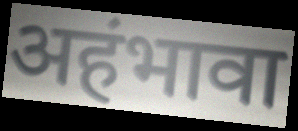
अहंभावा